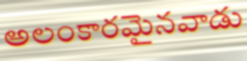
అలంకారమైనవాడు